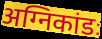
अग्निकांडः